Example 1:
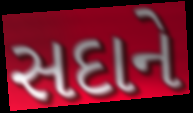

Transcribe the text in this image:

સદાને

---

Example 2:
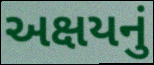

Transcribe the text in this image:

અક્ષયનું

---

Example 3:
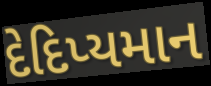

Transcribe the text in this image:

દેદિપ્યમાન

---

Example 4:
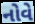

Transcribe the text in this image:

નોવે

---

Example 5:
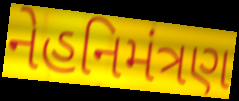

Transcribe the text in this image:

નેહનિમંત્રણ